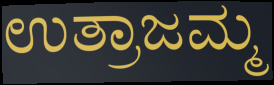
ಉತ್ರಾಜಮ್ಮ